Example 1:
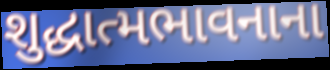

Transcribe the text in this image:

શુદ્ધાત્મભાવનાના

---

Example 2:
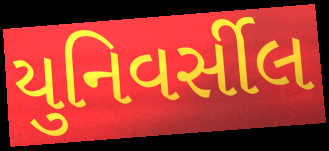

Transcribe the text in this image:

યુનિવર્સીલ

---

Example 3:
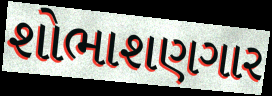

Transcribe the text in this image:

શોભાશણગાર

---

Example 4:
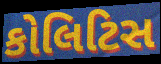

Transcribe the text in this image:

કોલિટિસ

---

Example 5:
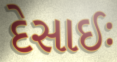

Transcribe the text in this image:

દેસાઈઃ